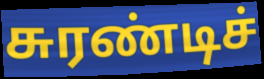
சுரண்டிச்